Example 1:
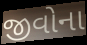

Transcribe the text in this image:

જીવોના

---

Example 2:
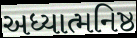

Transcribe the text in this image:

અધ્યાત્મનિષ્ઠ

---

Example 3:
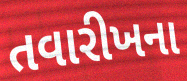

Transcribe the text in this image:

તવારીખના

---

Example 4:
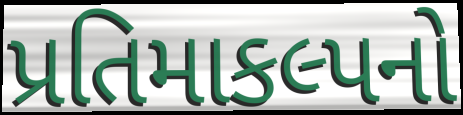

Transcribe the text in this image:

પ્રતિમાકલ્પનો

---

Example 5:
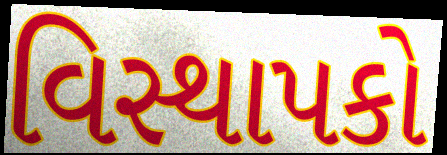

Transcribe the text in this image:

વિસ્થાપકો